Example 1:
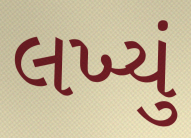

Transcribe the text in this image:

લખ્યું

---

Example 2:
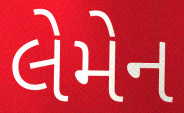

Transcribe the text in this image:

લેમેન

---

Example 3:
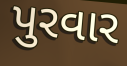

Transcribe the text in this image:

પુરવાર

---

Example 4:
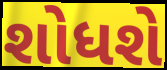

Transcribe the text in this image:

શોધશે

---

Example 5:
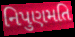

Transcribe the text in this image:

નિપુણમતિ